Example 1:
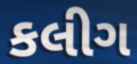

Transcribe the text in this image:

કલીગ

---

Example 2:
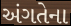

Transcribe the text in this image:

અંગતેના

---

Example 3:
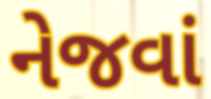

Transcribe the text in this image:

નેજવાં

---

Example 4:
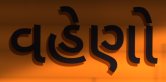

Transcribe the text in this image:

વહેણો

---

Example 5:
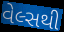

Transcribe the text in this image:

વેલ્સથી